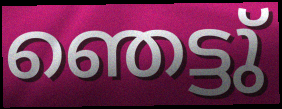
ഞെട്ടു്